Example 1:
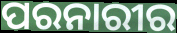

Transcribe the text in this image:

ପରନାରୀର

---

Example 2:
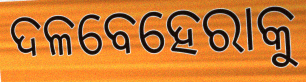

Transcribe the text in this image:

ଦଳବେହେରାକୁ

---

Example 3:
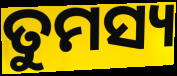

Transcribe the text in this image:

ତୁମସ୍ୟ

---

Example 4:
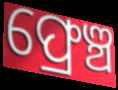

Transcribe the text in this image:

ଫ୍ରେଞ୍ଚ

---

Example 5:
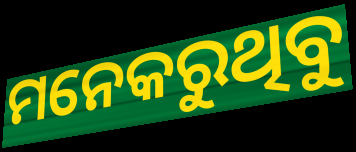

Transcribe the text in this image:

ମନେକରୁଥିବୁ